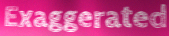
Exaggerated